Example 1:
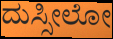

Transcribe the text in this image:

ದುಸ್ಸೀಲೋ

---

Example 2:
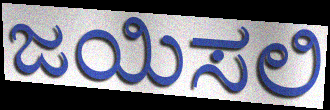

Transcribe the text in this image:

ಜಯಿಸಲಿ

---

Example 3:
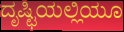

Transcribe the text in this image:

ದೃಷ್ಟಿಯಲ್ಲಿಯೂ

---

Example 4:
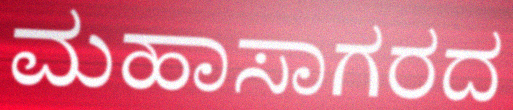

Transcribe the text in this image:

ಮಹಾಸಾಗರದ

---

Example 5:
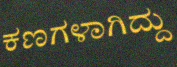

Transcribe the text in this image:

ಕಣಗಳಾಗಿದ್ದು